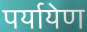
पर्यायेण